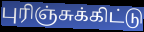
புரிஞ்சுக்கிட்டு